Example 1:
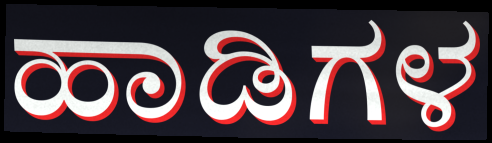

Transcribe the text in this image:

ಹಾಡಿಗಳ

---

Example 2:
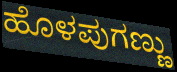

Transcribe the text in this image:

ಹೊಳಪುಗಣ್ಣು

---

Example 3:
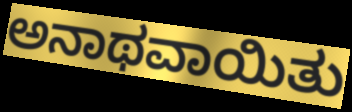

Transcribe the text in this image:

ಅನಾಥವಾಯಿತು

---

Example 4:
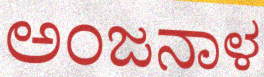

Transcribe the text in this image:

ಅಂಜನಾಳ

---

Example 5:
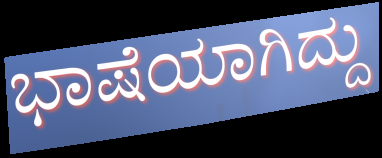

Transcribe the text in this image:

ಭಾಷೆಯಾಗಿದ್ದು